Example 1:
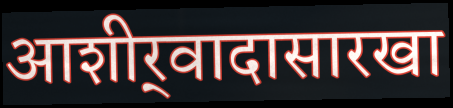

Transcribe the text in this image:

आशीर्वादासारखा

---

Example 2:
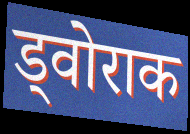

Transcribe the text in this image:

ड्वोराक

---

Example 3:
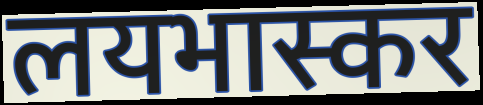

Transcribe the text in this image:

लयभास्कर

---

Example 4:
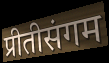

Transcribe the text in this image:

प्रीतीसंगम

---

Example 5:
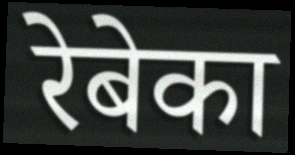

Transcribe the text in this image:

रेबेका